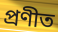
প্ৰণীত